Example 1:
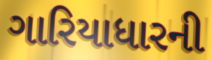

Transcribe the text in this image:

ગારિયાધારની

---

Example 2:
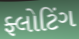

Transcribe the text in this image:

ફ્લોટિંગ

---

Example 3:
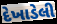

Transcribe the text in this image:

દેખાડેલી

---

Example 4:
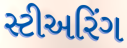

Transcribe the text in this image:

સ્ટીઅરિંગ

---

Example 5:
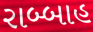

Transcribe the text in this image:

રાબ્બાહ